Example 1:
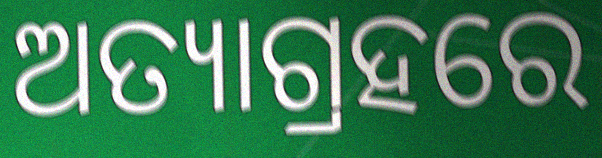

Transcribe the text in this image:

ଅତ୍ୟାଗ୍ରହରେ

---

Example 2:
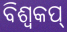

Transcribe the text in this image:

ବିଶ୍ବକପ୍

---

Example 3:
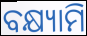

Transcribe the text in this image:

ବକ୍ଷ୍ୟାମି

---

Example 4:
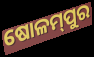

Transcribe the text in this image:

ଷୋଳମ୍‌ପୁର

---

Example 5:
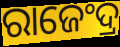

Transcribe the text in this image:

ରାଜେଂଦ୍ର